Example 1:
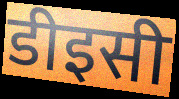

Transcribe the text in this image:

डीइसी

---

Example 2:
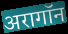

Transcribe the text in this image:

अरागॉन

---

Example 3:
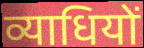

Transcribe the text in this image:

व्याधियों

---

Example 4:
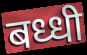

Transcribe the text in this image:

बध्धी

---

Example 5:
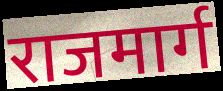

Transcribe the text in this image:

राजमार्ग